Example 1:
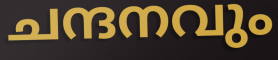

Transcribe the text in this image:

ചന്ദനവും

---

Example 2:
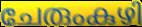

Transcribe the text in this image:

ചേരുംകുഴി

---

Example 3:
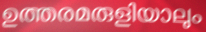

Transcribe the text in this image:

ഉത്തരമരുളിയാലും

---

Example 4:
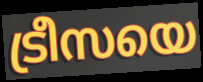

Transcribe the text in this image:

ട്രീസയെ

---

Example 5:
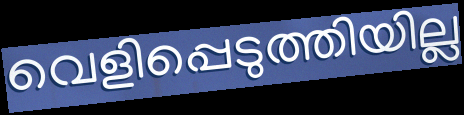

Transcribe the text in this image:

വെളിപ്പെടുത്തിയില്ല